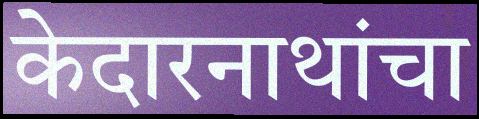
केदारनाथांचा